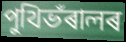
পুথিভঁৰালৰ